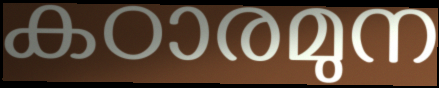
കഠാരമുന